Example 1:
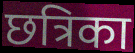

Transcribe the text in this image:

छत्रिका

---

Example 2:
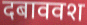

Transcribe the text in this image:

दबाववश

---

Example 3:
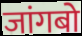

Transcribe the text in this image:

जांगबो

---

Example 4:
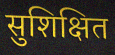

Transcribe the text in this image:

सुशिक्षित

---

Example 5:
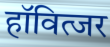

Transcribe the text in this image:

हॉवित्जर